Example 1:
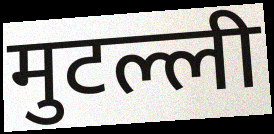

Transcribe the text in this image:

मुटल्ली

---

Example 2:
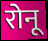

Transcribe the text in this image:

रोनू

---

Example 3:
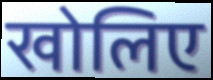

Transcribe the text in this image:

खोलिए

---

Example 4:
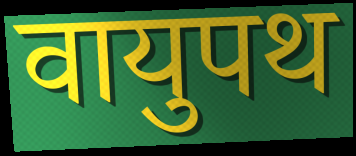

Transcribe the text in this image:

वायुपथ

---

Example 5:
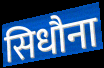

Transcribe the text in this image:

सिधौना